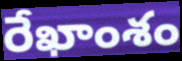
రేఖాంశం